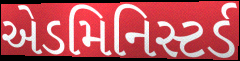
એડમિનિસ્ટર્ડ